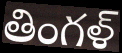
తింగళ్